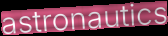
astronautics